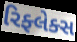
રિફ્લેક્સ